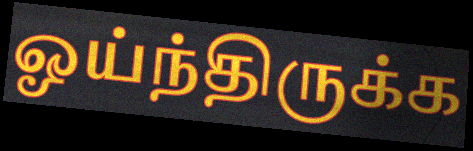
ஓய்ந்திருக்க